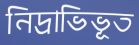
নিদ্রাভিভূত